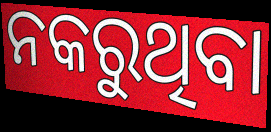
ନକରୁଥିବା